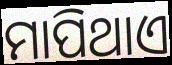
ମାପିଥାଏ